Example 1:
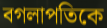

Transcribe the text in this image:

বগলাপতিকে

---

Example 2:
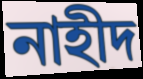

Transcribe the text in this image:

নাহীদ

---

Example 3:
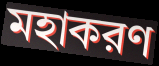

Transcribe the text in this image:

মহাকরণ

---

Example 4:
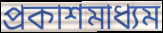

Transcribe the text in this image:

প্রকাশমাধ্যম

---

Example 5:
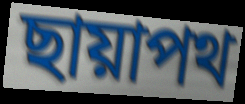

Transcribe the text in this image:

ছায়াপথ